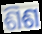
ଶିଶ